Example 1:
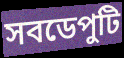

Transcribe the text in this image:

সবডেপুটি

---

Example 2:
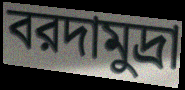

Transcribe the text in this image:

বরদামুদ্রা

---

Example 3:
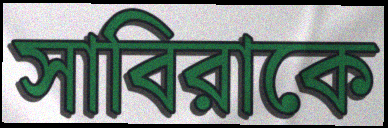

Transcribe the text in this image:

সাবিরাকে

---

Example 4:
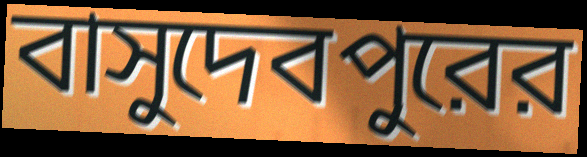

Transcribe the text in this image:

বাসুদেবপুরের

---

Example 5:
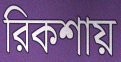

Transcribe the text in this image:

রিকশায়